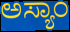
ಅಸ್ಯಾಂ